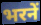
भरनें